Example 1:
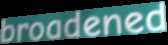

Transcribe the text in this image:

broadened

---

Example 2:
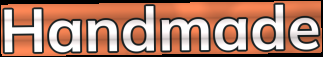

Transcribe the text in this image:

Handmade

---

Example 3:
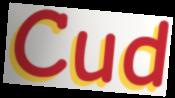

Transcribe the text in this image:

Cud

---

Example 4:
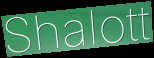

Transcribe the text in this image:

Shalott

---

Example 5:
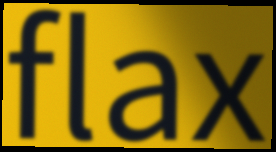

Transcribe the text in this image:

flax